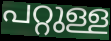
പറ്റുള്ള